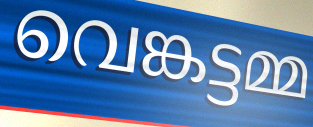
വെങ്കട്ടമ്മ